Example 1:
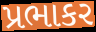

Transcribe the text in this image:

પ્રભાકર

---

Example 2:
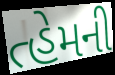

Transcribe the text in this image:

ત્હેમની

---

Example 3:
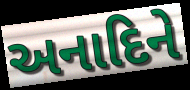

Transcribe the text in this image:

અનાદિને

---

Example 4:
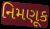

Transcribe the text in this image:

નિમણૂક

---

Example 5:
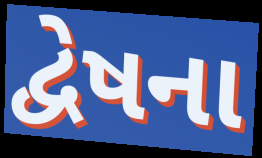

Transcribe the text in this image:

દ્વેષના